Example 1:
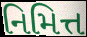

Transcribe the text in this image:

નિમિત્ત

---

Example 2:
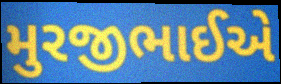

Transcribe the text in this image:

મુરજીભાઈએ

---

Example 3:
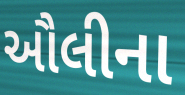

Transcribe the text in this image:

ઔલીના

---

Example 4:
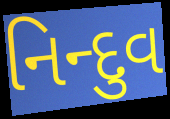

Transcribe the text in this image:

નિન્દુવ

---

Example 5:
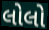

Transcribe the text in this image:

લોલો